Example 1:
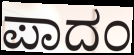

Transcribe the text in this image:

ಪಾದಂ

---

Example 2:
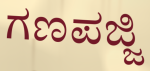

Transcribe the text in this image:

ಗಣಪಜ್ಜಿ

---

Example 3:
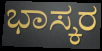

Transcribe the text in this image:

ಭಾಸ್ಕರ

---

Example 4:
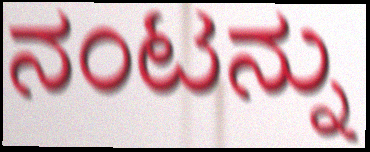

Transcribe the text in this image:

ನಂಟನ್ನು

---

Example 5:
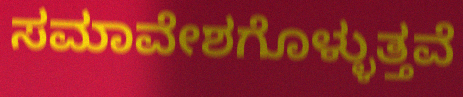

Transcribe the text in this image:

ಸಮಾವೇಶಗೊಳ್ಳುತ್ತವೆ